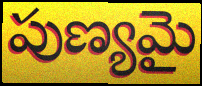
పుణ్యమై